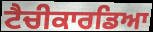
ਟੈਚੀਕਾਰਡਿਆ